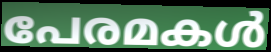
പേരമകൾ